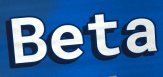
Beta